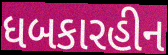
ધબકારહીન